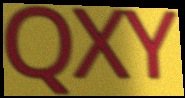
QXY